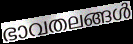
ഭാവതലങ്ങൾ